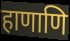
हाणाणि